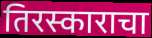
तिरस्काराचा